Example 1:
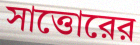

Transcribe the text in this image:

সাত্তোরের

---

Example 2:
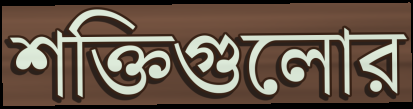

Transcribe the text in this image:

শক্তিগুলোর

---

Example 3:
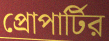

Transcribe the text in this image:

প্রোপার্টির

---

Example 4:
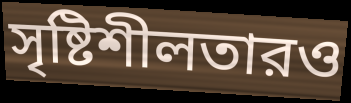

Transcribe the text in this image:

সৃষ্টিশীলতারও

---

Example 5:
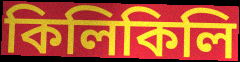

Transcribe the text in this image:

কিলিকিলি